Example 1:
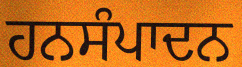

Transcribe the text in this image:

ਹਨਸੰਪਾਦਨ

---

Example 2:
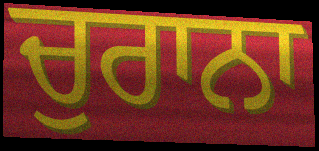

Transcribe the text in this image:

ਚੁਰਾਨਾ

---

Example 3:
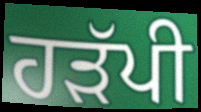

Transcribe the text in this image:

ਹੜੱਪੀ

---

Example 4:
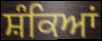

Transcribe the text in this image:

ਸ਼ੰਕਿਆਂ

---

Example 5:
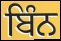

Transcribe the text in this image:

ਬਿੰਨ